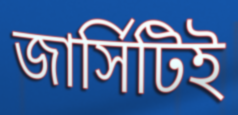
জার্সিটিই